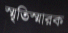
স্মৃতিস্মারক